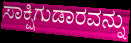
ಸಾಕ್ಷಿಗುಡಾರವನ್ನು